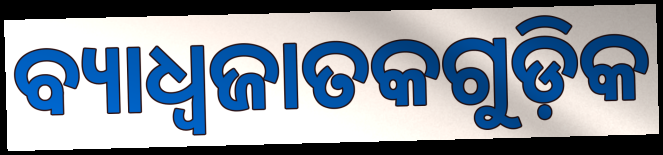
ବ୍ୟାଧ୍ଵଜାତକଗୁଡ଼ିକ